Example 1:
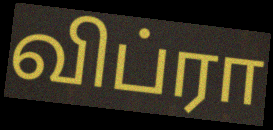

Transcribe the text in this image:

விப்ரா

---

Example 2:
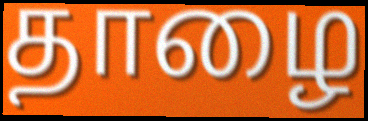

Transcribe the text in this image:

தாழை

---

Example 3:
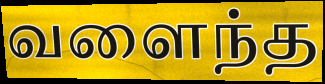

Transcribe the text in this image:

வளைந்த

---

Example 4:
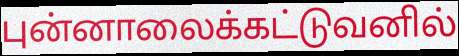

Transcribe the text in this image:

புன்னாலைக்கட்டுவனில்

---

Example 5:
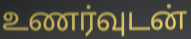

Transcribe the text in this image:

உணர்வுடன்